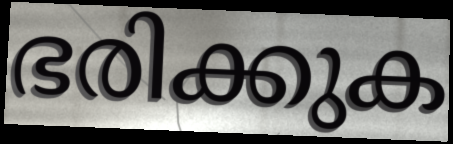
ഭരിക്കുക